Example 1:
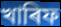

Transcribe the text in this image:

খাৰিফ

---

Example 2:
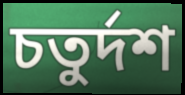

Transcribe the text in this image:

চতুৰ্দশ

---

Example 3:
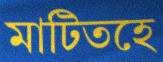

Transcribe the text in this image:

মাটিতহে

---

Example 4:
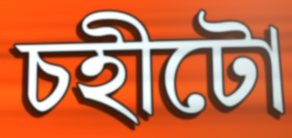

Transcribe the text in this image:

চহীটো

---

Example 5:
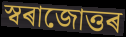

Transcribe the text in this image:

স্বৰাজোত্তৰ